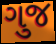
ગુજ